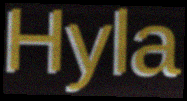
Hyla